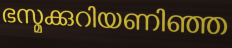
ഭസ്മക്കുറിയണിഞ്ഞ